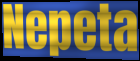
Nepeta